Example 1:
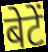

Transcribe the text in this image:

बेटें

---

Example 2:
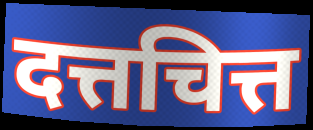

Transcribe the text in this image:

दत्तचित्त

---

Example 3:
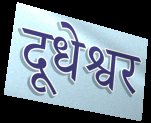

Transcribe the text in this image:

दूधेश्वर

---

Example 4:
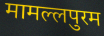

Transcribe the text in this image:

मामल्लपुरम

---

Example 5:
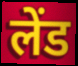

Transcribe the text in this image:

लेंड